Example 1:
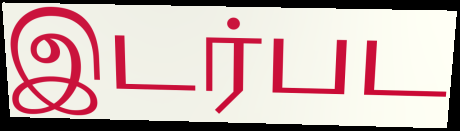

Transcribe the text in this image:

இடர்பட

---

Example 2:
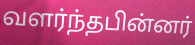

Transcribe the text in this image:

வளர்ந்தபின்னர்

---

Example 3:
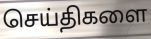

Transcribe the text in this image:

செய்திகளை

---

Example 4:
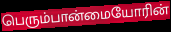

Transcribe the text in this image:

பெரும்பான்மையோரின்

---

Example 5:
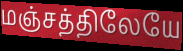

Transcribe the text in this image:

மஞ்சத்திலேயே